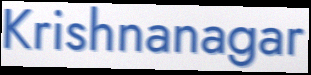
Krishnanagar